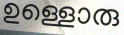
ഉള്ളൊരു